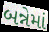
બન્નેમાં